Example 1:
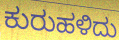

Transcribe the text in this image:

ಕುರುಹಳಿದು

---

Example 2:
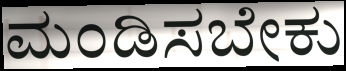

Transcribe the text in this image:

ಮಂಡಿಸಬೇಕು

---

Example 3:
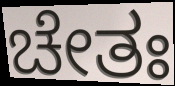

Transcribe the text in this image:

ಚೇತಃ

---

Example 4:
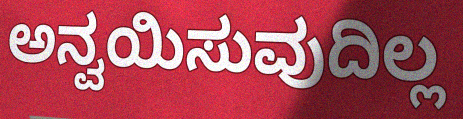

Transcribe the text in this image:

ಅನ್ವಯಿಸುವುದಿಲ್ಲ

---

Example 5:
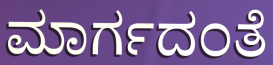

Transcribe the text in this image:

ಮಾರ್ಗದಂತೆ